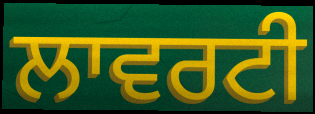
ਲਾਵਰਟੀ